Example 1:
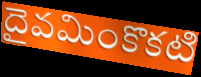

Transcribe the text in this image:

దైవమింకొకటి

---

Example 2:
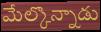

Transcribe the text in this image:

మేల్కొన్నాడు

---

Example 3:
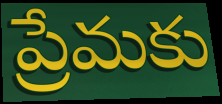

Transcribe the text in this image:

ప్రేమకు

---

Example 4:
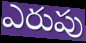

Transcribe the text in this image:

ఎరుపు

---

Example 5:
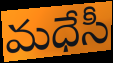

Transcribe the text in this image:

మధేసీ